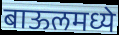
बाऊलमध्ये